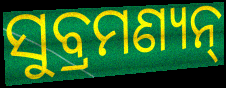
ସୁବ୍ରମଣ୍ୟନ୍